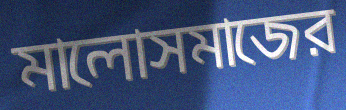
মালোসমাজের